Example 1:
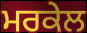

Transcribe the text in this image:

ਮਰਕੇਲ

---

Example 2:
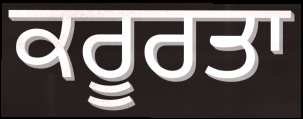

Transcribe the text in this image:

ਕਰੂਰਤਾ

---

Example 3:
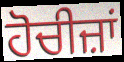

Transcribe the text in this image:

ਹੋਚੀਜ਼ਾਂ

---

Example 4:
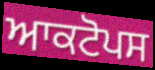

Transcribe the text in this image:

ਆਕਟੋਪਸ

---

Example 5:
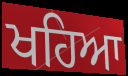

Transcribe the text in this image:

ਖਹਿਆ